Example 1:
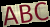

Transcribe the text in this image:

ABC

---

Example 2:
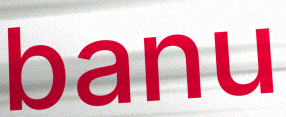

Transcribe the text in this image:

banu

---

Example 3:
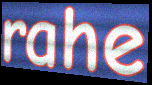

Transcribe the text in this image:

rahe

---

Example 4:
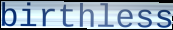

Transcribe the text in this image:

birthless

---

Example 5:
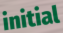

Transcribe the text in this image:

initial